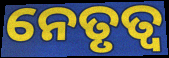
ନେତୃତ୍ଵ